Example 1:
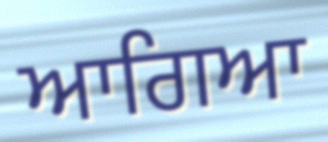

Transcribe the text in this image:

ਆਗਿਆ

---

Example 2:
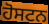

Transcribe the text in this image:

ਹੋਸਟਨ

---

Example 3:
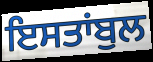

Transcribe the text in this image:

ਇਸਤਾਂਬੁਲ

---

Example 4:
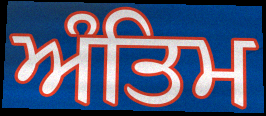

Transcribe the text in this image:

ਅੰਤਿਮ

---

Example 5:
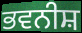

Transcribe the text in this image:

ਭਵਨੀਸ਼